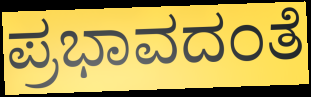
ಪ್ರಭಾವದಂತೆ